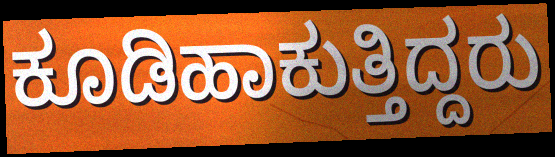
ಕೂಡಿಹಾಕುತ್ತಿದ್ದರು